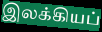
இலக்கியப்